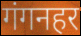
गंगनहर